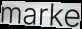
marke